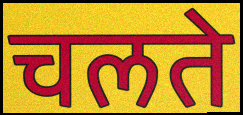
चलते